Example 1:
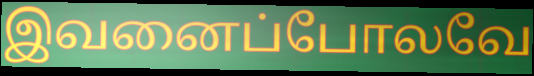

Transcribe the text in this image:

இவனைப்போலவே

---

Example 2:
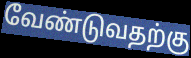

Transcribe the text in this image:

வேண்டுவதற்கு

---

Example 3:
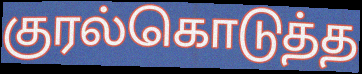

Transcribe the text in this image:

குரல்கொடுத்த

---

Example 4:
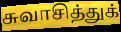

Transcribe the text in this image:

சுவாசித்துக்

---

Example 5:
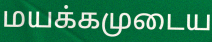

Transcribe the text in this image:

மயக்கமுடைய